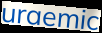
uraemic